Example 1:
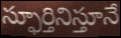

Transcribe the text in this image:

స్ఫూర్తినిస్తూనే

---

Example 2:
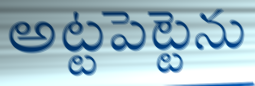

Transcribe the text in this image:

అట్టపెట్టెను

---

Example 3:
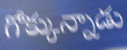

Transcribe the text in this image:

గోక్కున్నాడు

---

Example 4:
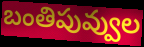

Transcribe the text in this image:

బంతిపువ్వుల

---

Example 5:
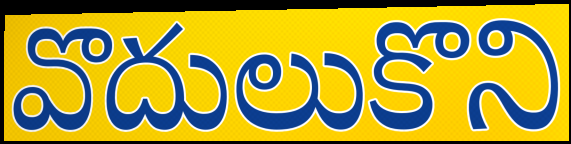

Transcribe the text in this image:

వొదులుకొని